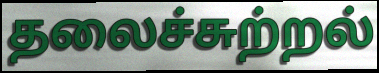
தலைச்சுற்றல்